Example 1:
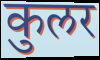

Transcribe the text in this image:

कुलर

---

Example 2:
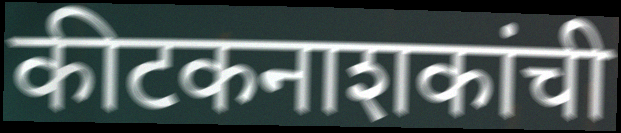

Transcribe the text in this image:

कीटकनाशकांची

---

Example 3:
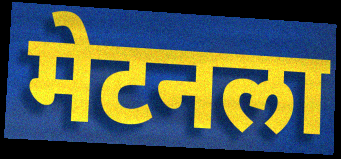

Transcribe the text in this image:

मेटनला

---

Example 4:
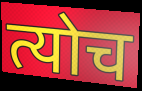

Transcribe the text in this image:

त्योच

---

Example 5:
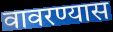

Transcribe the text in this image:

वावरण्यास